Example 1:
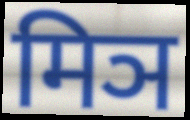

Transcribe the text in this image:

मिञ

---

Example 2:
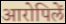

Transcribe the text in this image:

आरोपिलें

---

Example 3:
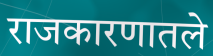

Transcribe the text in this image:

राजकारणातले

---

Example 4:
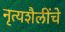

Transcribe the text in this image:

नृत्यशैलींचे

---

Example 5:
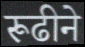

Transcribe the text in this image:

रूढीने